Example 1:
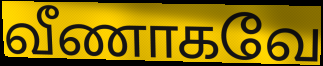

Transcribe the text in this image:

வீணாகவே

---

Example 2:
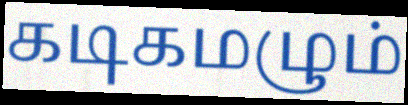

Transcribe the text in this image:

கடிகமழும்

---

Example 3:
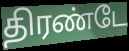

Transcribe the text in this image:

திரண்டே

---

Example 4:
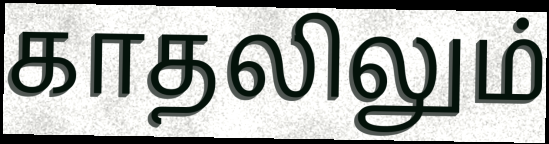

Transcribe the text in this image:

காதலிலும்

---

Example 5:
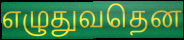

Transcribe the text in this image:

எழுதுவதென